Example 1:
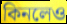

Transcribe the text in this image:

কিনলেও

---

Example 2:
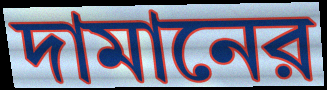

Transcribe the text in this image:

দামানের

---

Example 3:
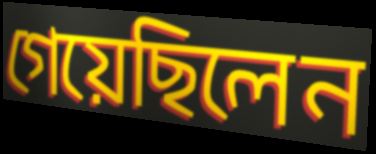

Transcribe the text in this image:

গেয়েছিলেন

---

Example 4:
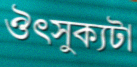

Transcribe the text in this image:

ঔৎসুক্যটা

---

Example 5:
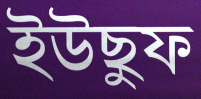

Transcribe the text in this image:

ইউছুফ